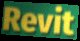
Revit